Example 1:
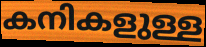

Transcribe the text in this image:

കനികളുള്ള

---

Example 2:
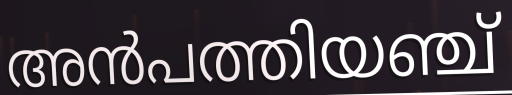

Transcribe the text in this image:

അൻപത്തിയഞ്ച്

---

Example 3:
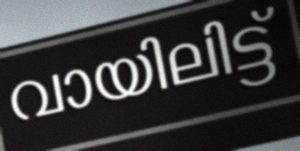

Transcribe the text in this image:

വായിലിട്ട്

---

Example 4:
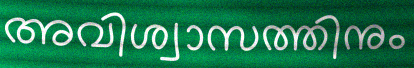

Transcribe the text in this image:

അവിശ്വാസത്തിനും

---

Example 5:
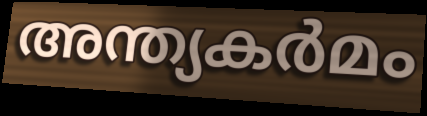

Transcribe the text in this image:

അന്ത്യകർമം